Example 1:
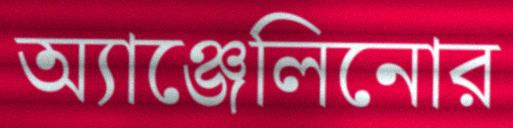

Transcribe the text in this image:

অ্যাঞ্জেলিনোর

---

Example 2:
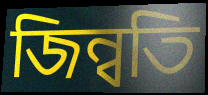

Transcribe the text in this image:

জিন্বতি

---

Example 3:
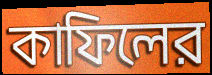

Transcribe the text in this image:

কাফিলের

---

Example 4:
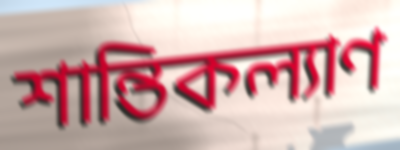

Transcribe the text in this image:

শান্তিকল্যাণ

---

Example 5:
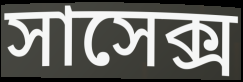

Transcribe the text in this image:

সাসেক্স